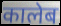
कालेब